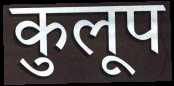
कुलूप